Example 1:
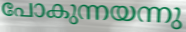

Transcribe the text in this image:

പോകുന്നയന്നു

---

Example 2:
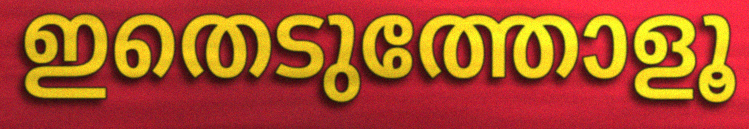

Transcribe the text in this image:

ഇതെടുത്തോളൂ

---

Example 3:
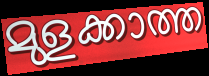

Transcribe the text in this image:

മുളക്കാത്ത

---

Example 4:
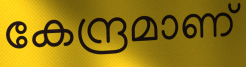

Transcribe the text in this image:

കേന്ദ്രമാണ്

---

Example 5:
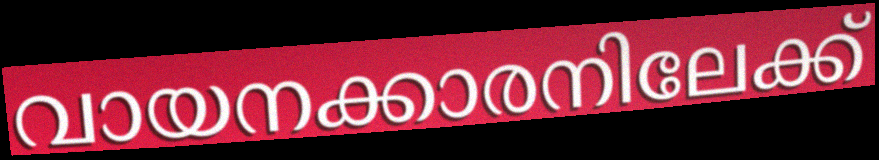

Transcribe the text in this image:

വായനക്കാരനിലേക്ക്